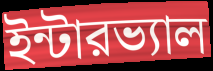
ইন্টারভ্যাল